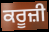
ਕਰੂਜ਼ੀ